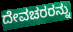
ದೇವಚರರನ್ನು